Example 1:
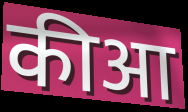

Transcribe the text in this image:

कीआ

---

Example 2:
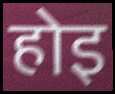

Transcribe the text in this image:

होइ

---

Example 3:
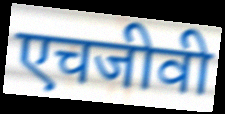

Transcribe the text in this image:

एचजीवी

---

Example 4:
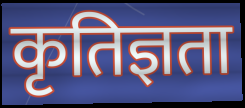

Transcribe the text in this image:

कृतिज्ञता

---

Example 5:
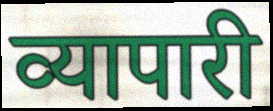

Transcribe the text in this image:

व्‍यापारी